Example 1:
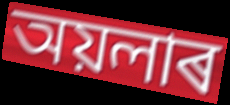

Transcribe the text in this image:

অয়লাৰ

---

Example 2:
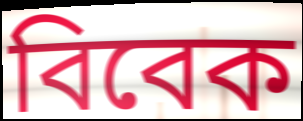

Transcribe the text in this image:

বিবেক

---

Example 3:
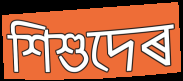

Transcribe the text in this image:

শিশুদেৰ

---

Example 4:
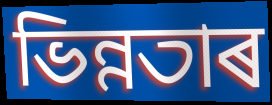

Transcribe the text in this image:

ভিন্নতাৰ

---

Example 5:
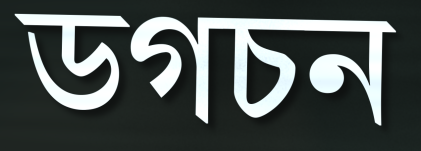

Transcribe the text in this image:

ডগচন